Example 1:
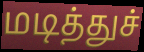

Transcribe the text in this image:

மடித்துச்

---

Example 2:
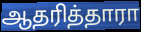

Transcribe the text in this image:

ஆதரித்தாரா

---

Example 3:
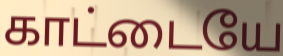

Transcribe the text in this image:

காட்டையே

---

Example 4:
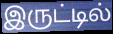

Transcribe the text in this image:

இருட்டில்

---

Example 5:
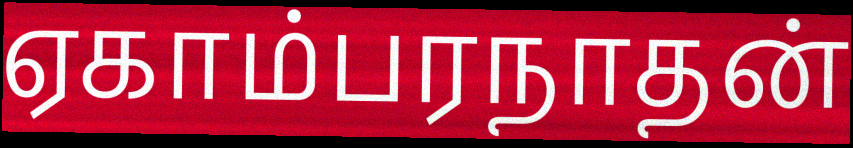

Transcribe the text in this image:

ஏகாம்பரநாதன்